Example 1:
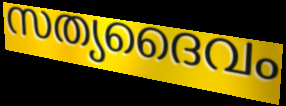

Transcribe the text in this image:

സത്യദൈവം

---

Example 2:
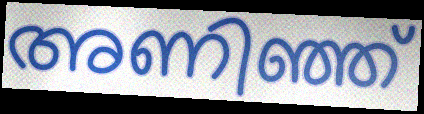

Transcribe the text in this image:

അണിഞ്ഞ്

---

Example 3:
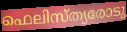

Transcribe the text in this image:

ഫെലിസ്ത്യരോടു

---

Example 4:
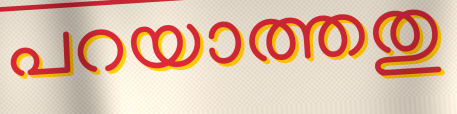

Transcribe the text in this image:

പറയാത്തതു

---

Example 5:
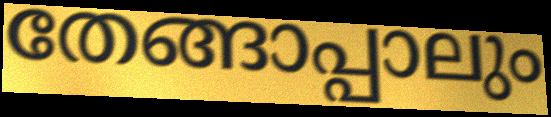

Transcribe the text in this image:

തേങ്ങാപ്പാലും